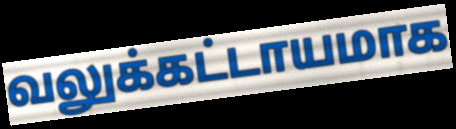
வலுக்கட்டாயமாக